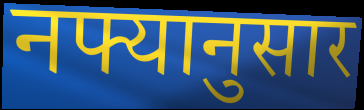
नफ्यानुसार